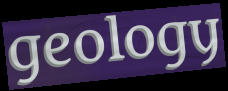
geology